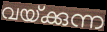
വയ്‌ക്കുന്ന